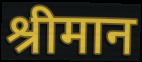
श्रीमान